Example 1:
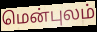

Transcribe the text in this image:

மென்புலம்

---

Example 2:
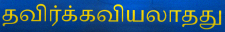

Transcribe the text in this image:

தவிர்க்கவியலாதது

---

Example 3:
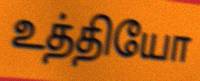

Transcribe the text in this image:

உத்தியோ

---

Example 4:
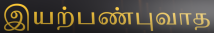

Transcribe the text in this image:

இயற்பண்புவாத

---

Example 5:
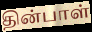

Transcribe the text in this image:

தின்பாள்